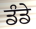
ਡੰਡੇ